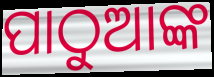
ପାଠୁଆଙ୍କ